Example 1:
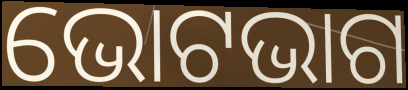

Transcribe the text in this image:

ଭୋଟଭାଗ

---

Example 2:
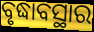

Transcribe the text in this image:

ବୃଦ୍ଧାବସ୍ଥାର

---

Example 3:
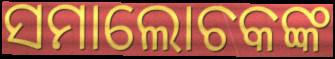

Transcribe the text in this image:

ସମାଲୋଚକଙ୍କ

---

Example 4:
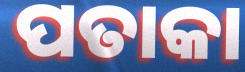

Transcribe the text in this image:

ପତାକା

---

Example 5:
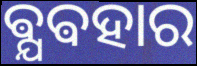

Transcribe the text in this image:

ଵ୍ଯଵହାର